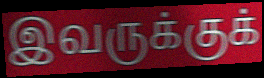
இவருக்குக்